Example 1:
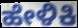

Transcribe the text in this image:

ಹೇಳಿಕಿ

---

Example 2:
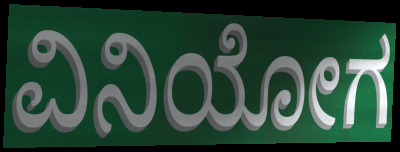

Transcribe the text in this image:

ವಿನಿಯೋಗ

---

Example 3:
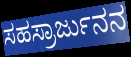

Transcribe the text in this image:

ಸಹಸ್ರಾರ್ಜುನನ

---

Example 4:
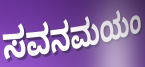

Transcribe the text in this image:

ಸವನಮಯಂ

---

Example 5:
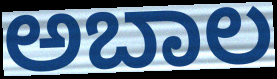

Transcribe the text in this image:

ಅಬಾಲ